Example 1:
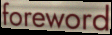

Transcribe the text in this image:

foreword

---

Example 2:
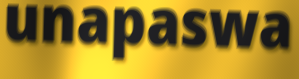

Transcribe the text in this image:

unapaswa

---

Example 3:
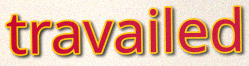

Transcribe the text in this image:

travailed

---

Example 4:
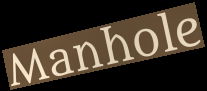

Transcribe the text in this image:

Manhole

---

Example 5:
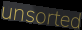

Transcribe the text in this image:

unsorted